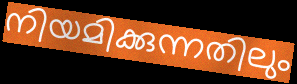
നിയമിക്കുന്നതിലും